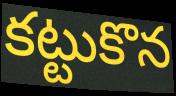
కట్టుకొన